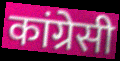
कांग्रेसी